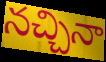
నచ్చినా